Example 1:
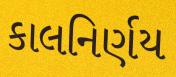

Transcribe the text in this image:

કાલનિર્ણય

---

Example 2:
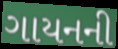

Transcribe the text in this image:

ગાયનની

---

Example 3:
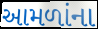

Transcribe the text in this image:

આમળાંના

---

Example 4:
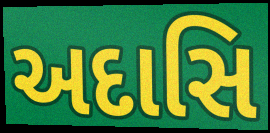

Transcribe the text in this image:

અદાસિ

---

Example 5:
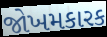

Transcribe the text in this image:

જોખમકારક